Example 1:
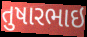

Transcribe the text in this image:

તુષારભાઇ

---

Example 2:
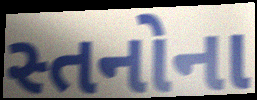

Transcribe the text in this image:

સ્તનોના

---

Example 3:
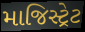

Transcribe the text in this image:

માજિસ્ટ્રેટ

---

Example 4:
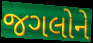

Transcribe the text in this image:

જગલોને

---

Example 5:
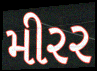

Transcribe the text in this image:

મીરર